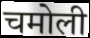
चमोली